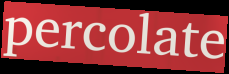
percolate